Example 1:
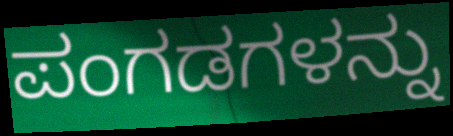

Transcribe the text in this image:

ಪಂಗಡಗಳನ್ನು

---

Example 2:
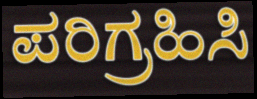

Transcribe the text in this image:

ಪರಿಗ್ರಹಿಸಿ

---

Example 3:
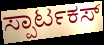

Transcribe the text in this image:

ಸ್ಪಾರ್ಟಕಸ್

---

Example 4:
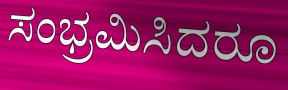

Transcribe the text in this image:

ಸಂಭ್ರಮಿಸಿದರೂ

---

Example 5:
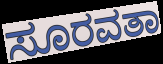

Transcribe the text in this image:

ಸೂರವತಾ